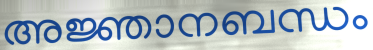
അജ്ഞാനബന്ധം